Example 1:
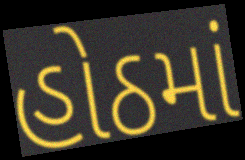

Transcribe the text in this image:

હોઠમાં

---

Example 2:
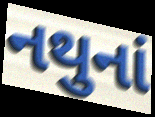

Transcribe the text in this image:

નથુનાં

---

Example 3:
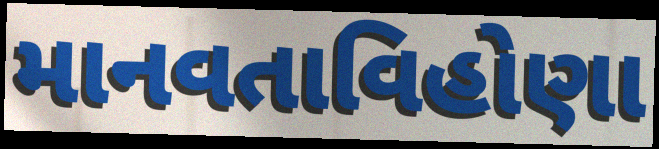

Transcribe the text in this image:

માનવતાવિહોણા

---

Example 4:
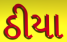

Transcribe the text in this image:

ઠીયા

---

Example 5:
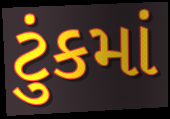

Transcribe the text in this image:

ટુંકમાં